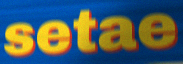
setae